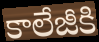
కాలేజీకి